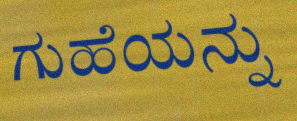
ಗುಹೆಯನ್ನು